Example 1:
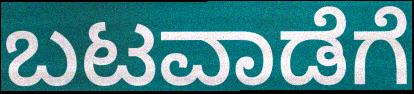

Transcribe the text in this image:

ಬಟವಾಡೆಗೆ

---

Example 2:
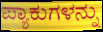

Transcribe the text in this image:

ಪ್ಯಾಕುಗಳನ್ನು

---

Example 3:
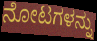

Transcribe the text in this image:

ನೋಟಗಳನ್ನು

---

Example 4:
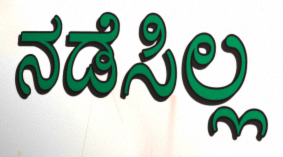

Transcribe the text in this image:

ನಡೆಸಿಲ್ಲ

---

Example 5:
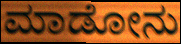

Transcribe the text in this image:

ಮಾಡೋನು